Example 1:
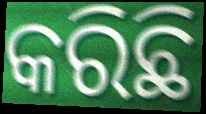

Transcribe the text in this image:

କରିଛି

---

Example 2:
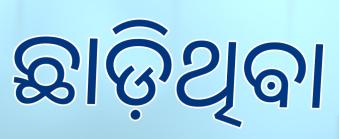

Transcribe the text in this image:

ଛାଡ଼ିଥିଵା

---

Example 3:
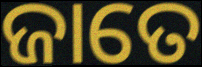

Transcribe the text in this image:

ଜାତେ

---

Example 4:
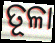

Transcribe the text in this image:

ତୂଳା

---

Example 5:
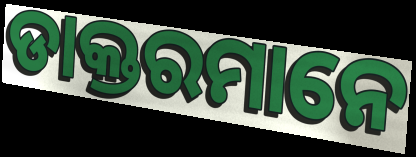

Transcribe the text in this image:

ଡାକ୍ତରମାନେ